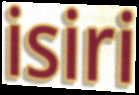
isiri